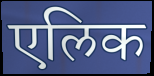
एलिक